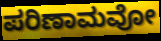
ಪರಿಣಾಮವೋ